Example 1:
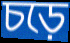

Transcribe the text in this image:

চড়ে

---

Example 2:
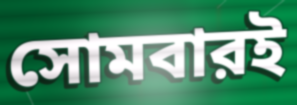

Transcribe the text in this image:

সোমবারই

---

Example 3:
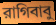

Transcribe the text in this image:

রাগিবাবু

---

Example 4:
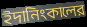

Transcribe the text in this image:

ইদানিংকালের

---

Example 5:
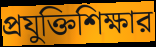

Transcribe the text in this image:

প্রযুক্তিশিক্ষার